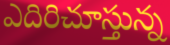
ఎదిరిచూస్తున్న